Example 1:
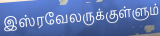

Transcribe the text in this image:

இஸ்ரவேலருக்குள்ளும்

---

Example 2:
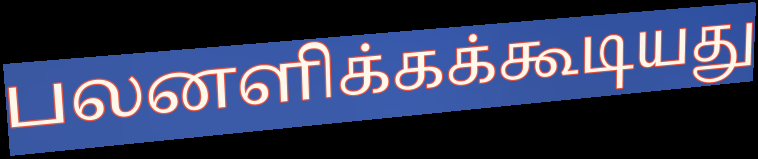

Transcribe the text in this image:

பலனளிக்கக்கூடியது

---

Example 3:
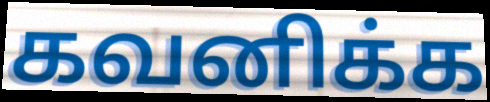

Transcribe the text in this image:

கவனிக்க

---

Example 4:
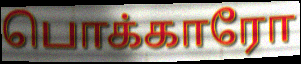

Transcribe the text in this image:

பொக்காரோ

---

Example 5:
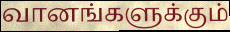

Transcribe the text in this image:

வானங்களுக்கும்